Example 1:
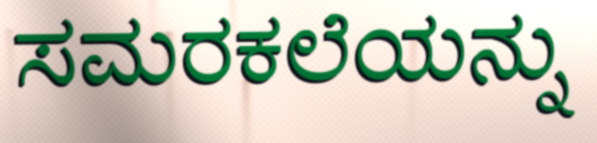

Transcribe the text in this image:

ಸಮರಕಲೆಯನ್ನು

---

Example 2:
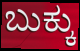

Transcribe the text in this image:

ಬುಕ್ಕು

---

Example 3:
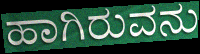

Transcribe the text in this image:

ಹಾಗಿರುವನು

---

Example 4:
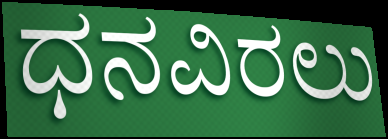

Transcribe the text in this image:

ಧನವಿರಲು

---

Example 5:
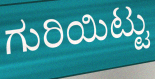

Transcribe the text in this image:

ಗುರಿಯಿಟ್ಟು